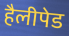
हैलीपेड